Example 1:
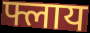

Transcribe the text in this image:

फ्लाय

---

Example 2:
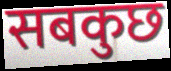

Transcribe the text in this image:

सबकुछ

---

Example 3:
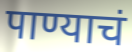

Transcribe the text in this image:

पाण्याचं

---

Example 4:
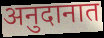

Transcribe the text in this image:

अनुदानात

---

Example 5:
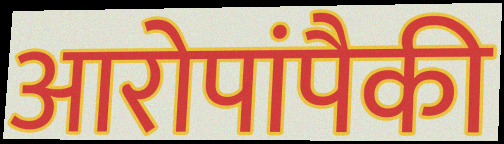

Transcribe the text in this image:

आरोपांपैकी